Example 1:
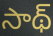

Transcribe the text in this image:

సాథ్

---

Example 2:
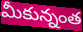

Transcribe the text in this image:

మీకున్నంత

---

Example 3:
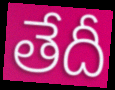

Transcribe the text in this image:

తేదీ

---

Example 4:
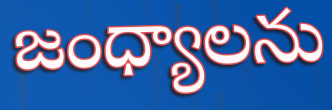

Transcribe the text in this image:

జంధ్యాలను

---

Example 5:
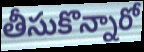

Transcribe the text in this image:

తీసుకొన్నారో